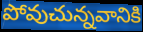
పోవుచున్నవానికి